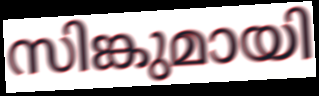
സിങ്കുമായി